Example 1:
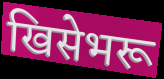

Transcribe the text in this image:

खिसेभरू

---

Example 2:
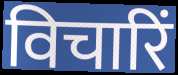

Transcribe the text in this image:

विचारिं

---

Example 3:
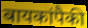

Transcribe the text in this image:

बायकांपैकी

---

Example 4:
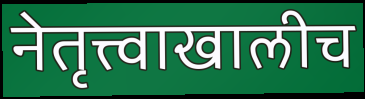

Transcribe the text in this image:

नेतृत्त्वाखालीच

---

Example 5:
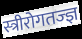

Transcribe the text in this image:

स्‍त्रीरोगतज्‍ज्ञ